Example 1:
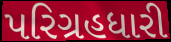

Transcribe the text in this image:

પરિગ્રહધારી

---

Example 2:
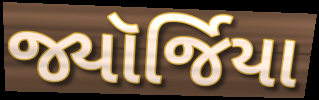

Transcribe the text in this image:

જ્યૉર્જિયા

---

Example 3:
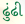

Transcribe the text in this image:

ઢુંઢી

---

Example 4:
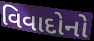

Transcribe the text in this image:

વિવાદોનો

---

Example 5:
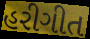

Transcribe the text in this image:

હરીગીત